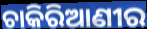
ଚାକିରିଆଣୀର